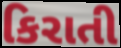
કિરાતી